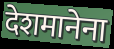
देशमानेना